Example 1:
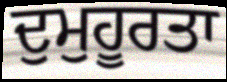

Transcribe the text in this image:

ਦੁਮੁਹੂਰਤਾ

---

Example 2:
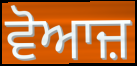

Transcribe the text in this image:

ਵੋਆਜ਼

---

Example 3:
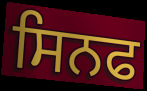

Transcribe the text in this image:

ਸਿਨਫ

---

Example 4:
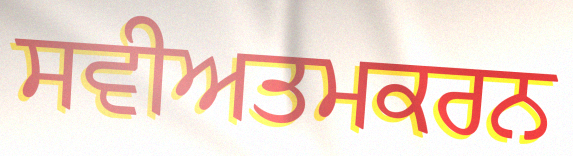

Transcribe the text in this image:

ਸਵੀਅਤਮਕਰਨ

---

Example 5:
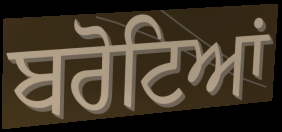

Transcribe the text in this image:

ਬਰੋਟਿਆਂ